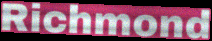
Richmond